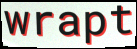
wrapt